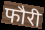
फौरी